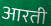
आरती